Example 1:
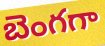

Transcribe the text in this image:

బెంగగా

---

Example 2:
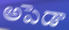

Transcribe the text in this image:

అపెడా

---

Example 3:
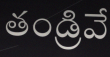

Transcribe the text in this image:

తండ్రివే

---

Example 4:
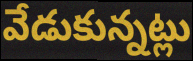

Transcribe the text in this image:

వేడుకున్నట్లు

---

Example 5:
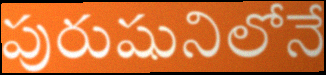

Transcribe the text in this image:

పురుషునిలోనే